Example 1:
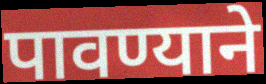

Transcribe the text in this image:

पावण्याने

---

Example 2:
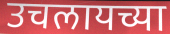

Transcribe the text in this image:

उचलायच्या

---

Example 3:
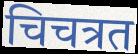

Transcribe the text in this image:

चिचत्रत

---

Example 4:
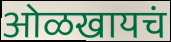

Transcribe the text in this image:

ओळखायचं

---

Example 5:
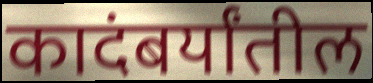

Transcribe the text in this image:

कादंबर्यांतील